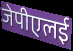
जेपीएलई